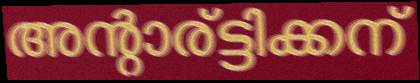
അന്റാര്ട്ടിക്കന്